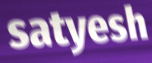
satyesh